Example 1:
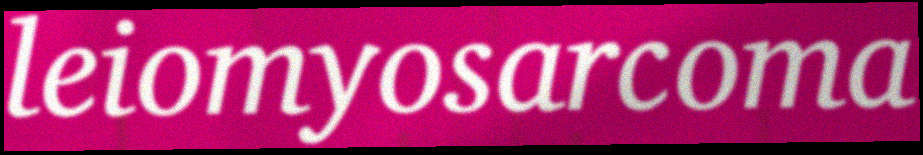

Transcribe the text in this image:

leiomyosarcoma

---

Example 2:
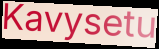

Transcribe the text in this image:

Kavysetu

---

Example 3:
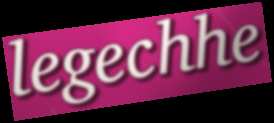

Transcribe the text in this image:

legechhe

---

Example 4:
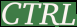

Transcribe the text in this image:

CTRL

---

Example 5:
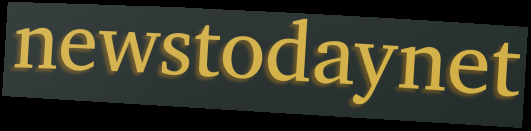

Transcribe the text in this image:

newstodaynet